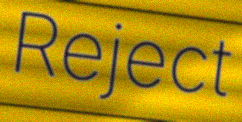
Reject